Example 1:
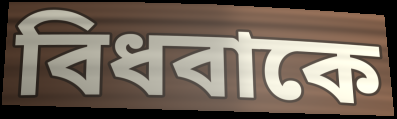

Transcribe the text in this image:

বিধবাকে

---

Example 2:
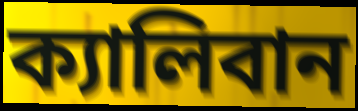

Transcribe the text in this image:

ক্যালিবান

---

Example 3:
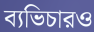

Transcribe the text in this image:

ব্যভিচারও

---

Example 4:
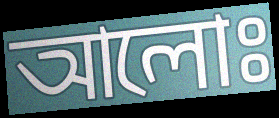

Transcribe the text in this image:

আলোঃ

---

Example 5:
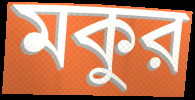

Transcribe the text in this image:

মকুর